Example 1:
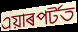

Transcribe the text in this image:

এয়াৰপৰ্টত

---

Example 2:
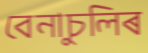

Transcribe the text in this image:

বেনাচুলিৰ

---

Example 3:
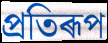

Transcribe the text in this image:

প্ৰতিৰূপ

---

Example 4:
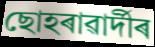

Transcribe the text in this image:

ছোহৰাৱাৰ্দীৰ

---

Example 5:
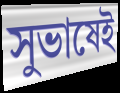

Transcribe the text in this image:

সুভাষেই